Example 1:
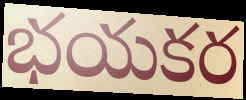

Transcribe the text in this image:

భయకర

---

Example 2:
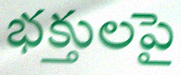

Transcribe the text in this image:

భక్తులపై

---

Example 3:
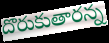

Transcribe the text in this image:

దొరుకుతారన్న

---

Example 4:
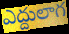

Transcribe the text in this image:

ఎద్దులాగ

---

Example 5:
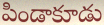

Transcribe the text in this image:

పిండాకూడు